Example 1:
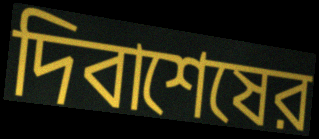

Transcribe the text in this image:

দিবাশেষের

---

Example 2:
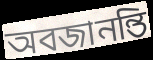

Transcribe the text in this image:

অবজানন্তি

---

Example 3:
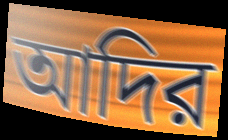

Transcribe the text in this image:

আদির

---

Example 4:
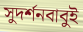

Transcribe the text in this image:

সুদর্শনবাবুই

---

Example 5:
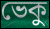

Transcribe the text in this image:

ভেকু